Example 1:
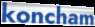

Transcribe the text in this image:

koncham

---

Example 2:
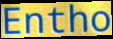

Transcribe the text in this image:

Entho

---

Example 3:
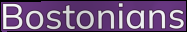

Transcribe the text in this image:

Bostonians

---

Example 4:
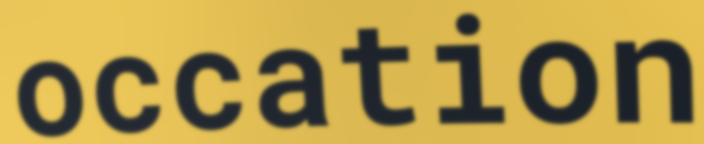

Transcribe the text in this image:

occation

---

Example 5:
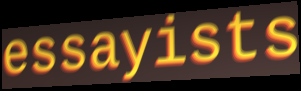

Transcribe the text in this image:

essayists